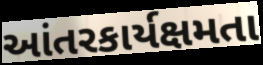
આંતરકાર્યક્ષમતા